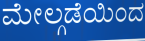
ಮೇಲ್ಗಡೆಯಿಂದ